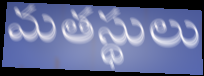
మతస్థులు